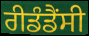
ਰੀਡੰਡੈਂਸੀ